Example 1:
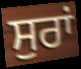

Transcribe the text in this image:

ਸੁਰਾਂ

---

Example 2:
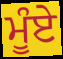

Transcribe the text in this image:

ਮੂੰਏ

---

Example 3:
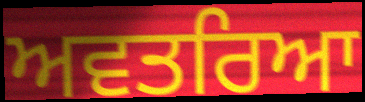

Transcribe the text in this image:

ਅਵਤਰਿਆ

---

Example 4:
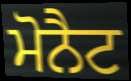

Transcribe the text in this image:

ਮੋਨੈਟ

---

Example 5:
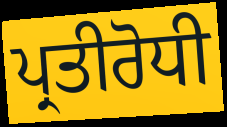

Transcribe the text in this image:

ਪ੍ਰਤੀਰੋਧੀ